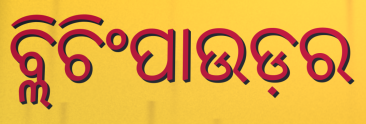
ବ୍ଲିଚିଂପାଉଡ଼ର